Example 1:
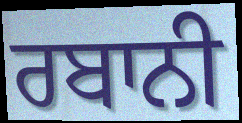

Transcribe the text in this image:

ਰਬਾਨੀ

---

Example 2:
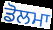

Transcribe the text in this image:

ਡੋਲਮਾ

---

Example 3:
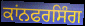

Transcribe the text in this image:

ਕਾਂਨਫਰਸਿੰਗ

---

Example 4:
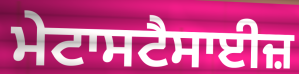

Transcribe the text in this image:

ਮੇਟਾਸਟੈਸਾਈਜ਼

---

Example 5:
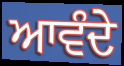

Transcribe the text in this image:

ਆਵੰਦੇ